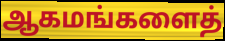
ஆகமங்களைத்